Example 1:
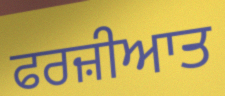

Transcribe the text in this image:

ਫਰਜ਼ੀਆਤ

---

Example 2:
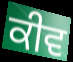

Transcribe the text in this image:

ਕੀਵ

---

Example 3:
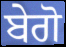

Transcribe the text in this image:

ਬੇਗੋ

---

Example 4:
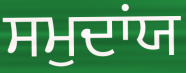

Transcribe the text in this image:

ਸਮੁਦਾਂਯ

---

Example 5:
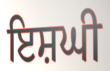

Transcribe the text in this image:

ਇਸ਼ਘੀ